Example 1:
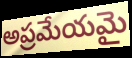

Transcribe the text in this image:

అప్రమేయమై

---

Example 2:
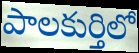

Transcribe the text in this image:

పాలకుర్తిలో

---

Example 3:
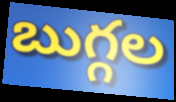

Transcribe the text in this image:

బుగ్గల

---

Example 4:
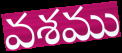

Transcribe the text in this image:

వశము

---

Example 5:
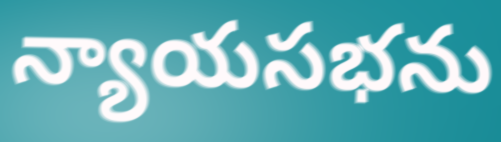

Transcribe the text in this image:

న్యాయసభను